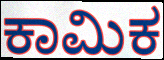
ಕಾಮಿಕ